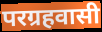
परग्रहवासी